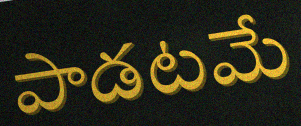
పాడటమే